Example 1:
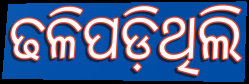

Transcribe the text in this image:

ଢଳିପଡ଼ିଥିଲି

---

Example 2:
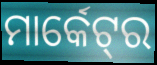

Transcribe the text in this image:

ମାର୍କେଟ୍‌ର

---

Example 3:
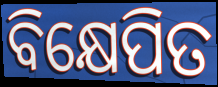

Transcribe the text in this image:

ବିକ୍ଷେପିତ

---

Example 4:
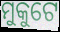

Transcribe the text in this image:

ମୁକୁଟେ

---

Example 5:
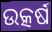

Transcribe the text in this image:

ଉତ୍କର୍ଷ